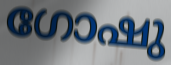
ഗോഷു